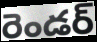
రెండర్